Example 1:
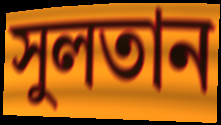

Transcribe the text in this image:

সুলতান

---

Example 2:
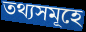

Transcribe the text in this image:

তথ্যসমূহে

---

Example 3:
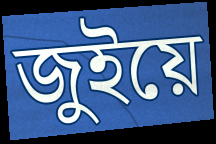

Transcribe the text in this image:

জুইয়ে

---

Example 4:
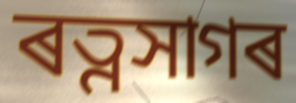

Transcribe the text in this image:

ৰত্নসাগৰ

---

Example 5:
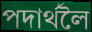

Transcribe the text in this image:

পদাৰ্থলৈ